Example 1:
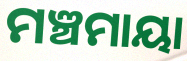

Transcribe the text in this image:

ମଞ୍ଚମାୟା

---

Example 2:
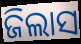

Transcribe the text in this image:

ଜିଲାସ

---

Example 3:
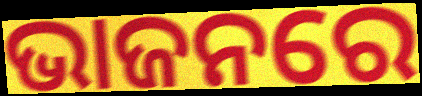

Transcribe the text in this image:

ଭାଜନରେ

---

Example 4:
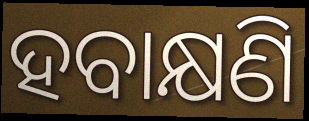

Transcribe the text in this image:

ହବାକ୍ଷଣି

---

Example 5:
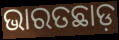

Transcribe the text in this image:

ଭାରତଛାଡ଼